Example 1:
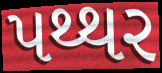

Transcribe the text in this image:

પથ્થર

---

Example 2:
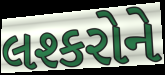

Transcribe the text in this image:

લશ્કરોને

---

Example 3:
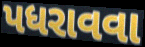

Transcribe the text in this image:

પધરાવવા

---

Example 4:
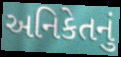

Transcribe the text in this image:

અનિકેતનું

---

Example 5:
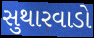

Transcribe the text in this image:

સુથારવાડો